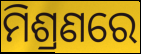
ମିଶ୍ରଣରେ